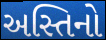
અસ્તિનો